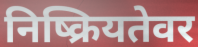
निष्क्रियतेवर